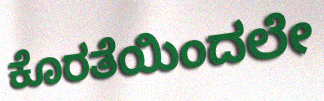
ಕೊರತೆಯಿಂದಲೇ